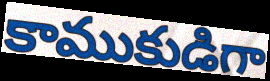
కాముకుడిగా